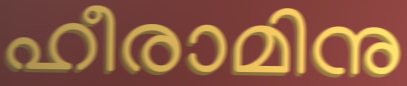
ഹീരാമിനു